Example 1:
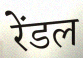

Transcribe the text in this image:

रेंडल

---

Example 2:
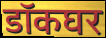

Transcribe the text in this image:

डॉकघर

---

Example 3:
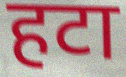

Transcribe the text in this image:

हटा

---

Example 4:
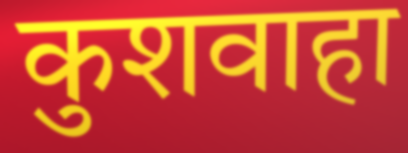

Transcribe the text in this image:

कुशवाहा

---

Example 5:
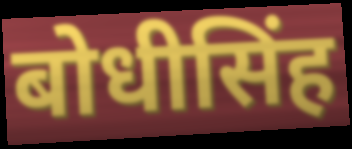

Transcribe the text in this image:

बोधीसिंह